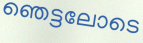
ഞെട്ടലോടെ